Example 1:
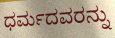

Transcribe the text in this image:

ಧರ್ಮದವರನ್ನು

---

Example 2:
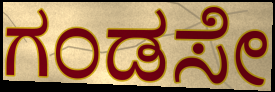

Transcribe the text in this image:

ಗಂಡಸೇ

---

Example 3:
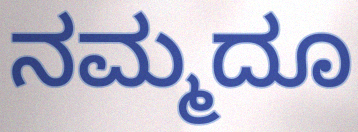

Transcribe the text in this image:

ನಮ್ಮದೂ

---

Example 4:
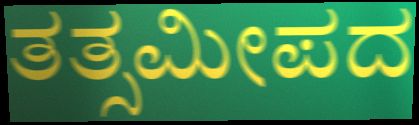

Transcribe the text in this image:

ತತ್ಸಮೀಪದ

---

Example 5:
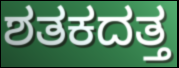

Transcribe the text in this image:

ಶತಕದತ್ತ